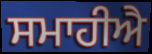
ਸਮਾਹੀਐ